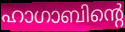
ഹാഗാബിന്റെ